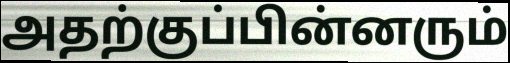
அதற்குப்பின்னரும்